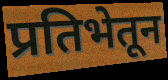
प्रतिभेतून